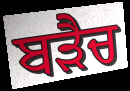
ਬੜੈਚ